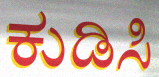
ಕುಡಿಸಿ